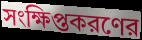
সংক্ষিপ্তকরণের